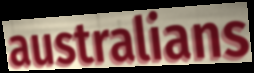
australians